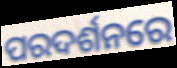
ପରଦର୍ଶନରେ